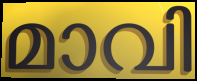
മാവി